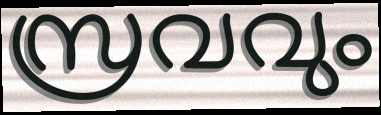
സ്രവവും